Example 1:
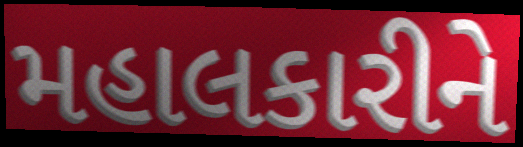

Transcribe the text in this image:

મહાલકારીને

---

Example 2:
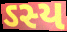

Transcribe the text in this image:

ઽસ્ય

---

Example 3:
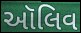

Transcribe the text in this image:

ઑલિવ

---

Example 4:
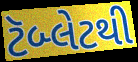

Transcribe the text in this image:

ટૅબ્લેટથી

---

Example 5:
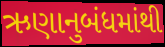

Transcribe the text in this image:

ઋણાનુબંધમાંથી